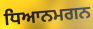
ਧਿਆਨਮਗਨ